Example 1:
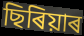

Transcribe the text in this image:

ছিৰিয়াৰ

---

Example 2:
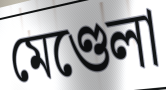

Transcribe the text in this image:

মেণ্ডেলা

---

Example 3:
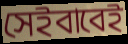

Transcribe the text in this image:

সেইবাবেই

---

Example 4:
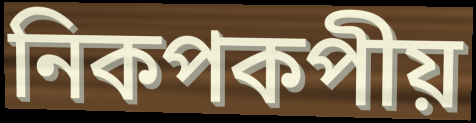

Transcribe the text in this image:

নিকপকপীয়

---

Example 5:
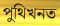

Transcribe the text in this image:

পুথিখনত